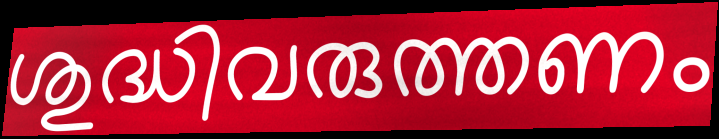
ശുദ്ധിവരുത്തണം